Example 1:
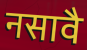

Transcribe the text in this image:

नसावै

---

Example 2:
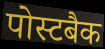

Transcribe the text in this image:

पोस्टबैक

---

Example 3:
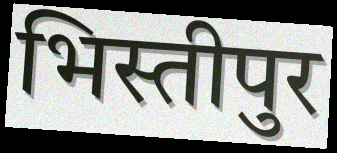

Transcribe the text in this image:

भिस्तीपुर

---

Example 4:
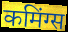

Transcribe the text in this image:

कमिंग्स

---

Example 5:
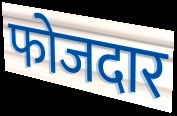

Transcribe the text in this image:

फोजदार